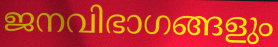
ജനവിഭാഗങ്ങളും